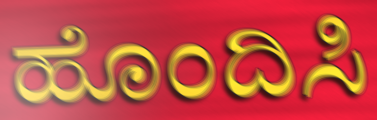
ಹೊಂದಿಸಿ